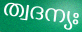
ത്വദന്യഃ